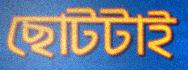
ছোটটাই